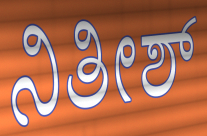
ನಿತೀಶ್